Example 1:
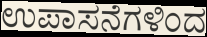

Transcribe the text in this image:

ಉಪಾಸನೆಗಳಿಂದ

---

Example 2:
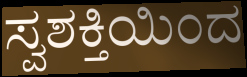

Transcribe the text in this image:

ಸ್ವಶಕ್ತಿಯಿಂದ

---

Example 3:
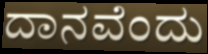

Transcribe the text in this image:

ದಾನವೆಂದು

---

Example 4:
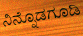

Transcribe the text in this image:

ನಿನ್ನೊಡಗೂಡಿ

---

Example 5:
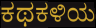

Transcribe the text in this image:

ಕಥಕಳಿಯ